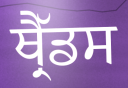
ਥ੍ਰੈੱਡਸ